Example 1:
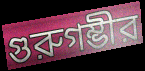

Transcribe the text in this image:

গুরুগম্ভীর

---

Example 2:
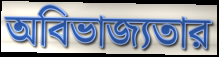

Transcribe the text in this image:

অবিভাজ্যতার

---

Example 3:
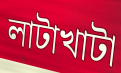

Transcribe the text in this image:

লাটাখাটা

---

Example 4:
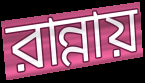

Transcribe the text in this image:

রান্নায়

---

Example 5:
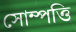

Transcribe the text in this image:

সোম্পত্তি